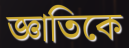
জ্ঞাতিকে